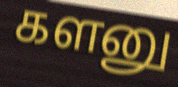
களனு